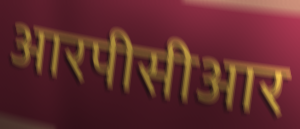
आरपीसीआर